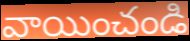
వాయించండి